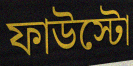
ফাউস্টো